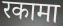
रकामा